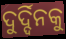
ଦୁର୍ଦ୍ଦିନକୁ